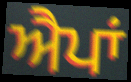
ਐਪਾਂ